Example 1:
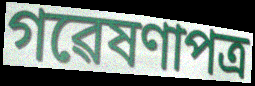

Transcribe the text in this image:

গৱেষণাপত্ৰ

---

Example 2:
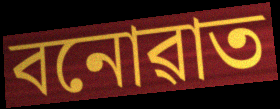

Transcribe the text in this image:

বনোৱাত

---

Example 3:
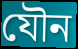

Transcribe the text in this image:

যৌন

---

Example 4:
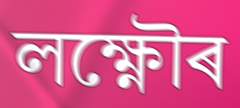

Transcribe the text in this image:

লক্ষ্ণৌৰ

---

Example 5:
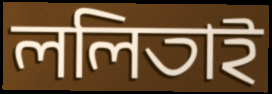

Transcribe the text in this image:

ললিতাই